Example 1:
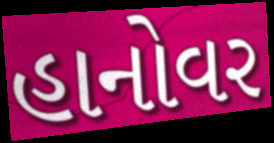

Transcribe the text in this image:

હાનોવર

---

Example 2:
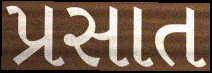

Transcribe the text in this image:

પ્રસાત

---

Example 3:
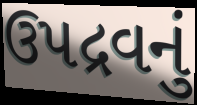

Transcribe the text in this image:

ઉપદ્રવનું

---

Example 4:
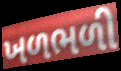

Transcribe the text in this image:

ખળભળી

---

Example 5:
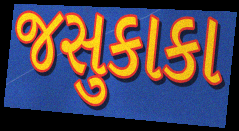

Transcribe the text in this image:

જસુકાકા